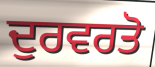
ਦੁਰਵਰਤੋ